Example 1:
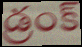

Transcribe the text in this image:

డ్రంక్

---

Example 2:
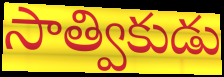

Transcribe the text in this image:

సాత్వికుడు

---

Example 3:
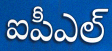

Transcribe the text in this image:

ఐపీఎల్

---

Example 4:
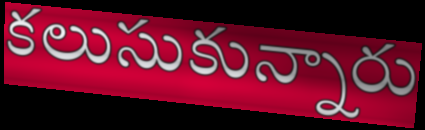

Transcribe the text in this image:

కలుసుకున్నారు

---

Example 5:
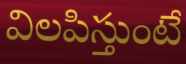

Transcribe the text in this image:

విలపిస్తుంటే